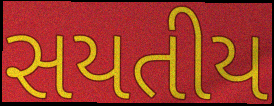
સયતીય